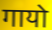
गायो